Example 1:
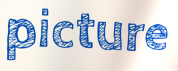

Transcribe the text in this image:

picture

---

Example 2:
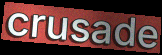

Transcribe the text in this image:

crusade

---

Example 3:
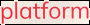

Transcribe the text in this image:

platform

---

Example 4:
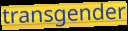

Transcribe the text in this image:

transgender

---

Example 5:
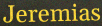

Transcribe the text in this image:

Jeremias